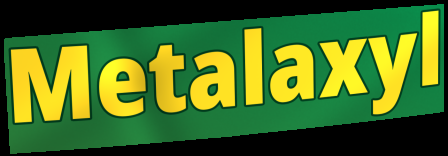
Metalaxyl